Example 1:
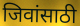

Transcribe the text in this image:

जिवांसाठी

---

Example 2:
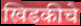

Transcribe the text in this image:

खिडकीचे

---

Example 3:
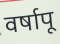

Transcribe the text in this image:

वर्षापू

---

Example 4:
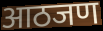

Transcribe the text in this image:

आठजण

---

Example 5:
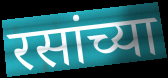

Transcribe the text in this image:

रसांच्या